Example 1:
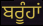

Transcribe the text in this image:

ਬਰੂੰਹਾਂ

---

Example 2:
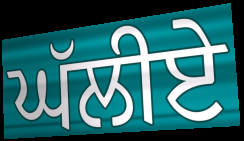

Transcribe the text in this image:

ਘੱਲੀਏ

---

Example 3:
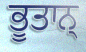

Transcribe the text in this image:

ਭੂਤਾਨ੍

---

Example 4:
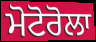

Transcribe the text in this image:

ਮੋਟੋਰੋਲਾ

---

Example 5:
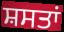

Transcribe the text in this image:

ਸ਼ਸਤਾਂ